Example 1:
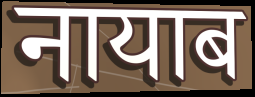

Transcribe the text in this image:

नायाब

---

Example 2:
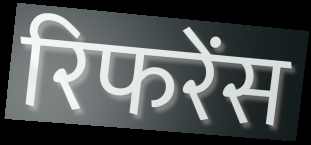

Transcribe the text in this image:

रिफरेंस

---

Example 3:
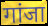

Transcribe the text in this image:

गांजा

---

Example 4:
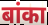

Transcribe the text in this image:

बांका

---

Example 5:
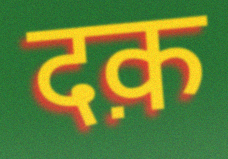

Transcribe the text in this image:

दक़